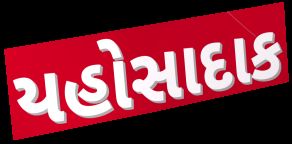
યહોસાદાક